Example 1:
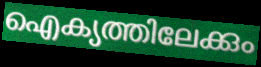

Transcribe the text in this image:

ഐക്യത്തിലേക്കും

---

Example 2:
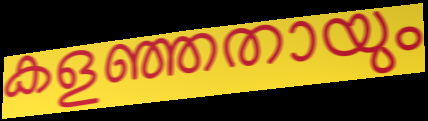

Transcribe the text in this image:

കളഞ്ഞതായും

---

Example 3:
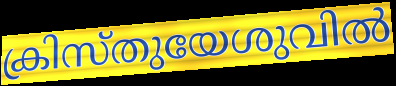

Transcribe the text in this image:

ക്രിസ്തുയേശുവിൽ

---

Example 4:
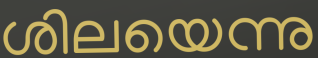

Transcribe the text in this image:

ശിലയെന്നു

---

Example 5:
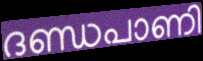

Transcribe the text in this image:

ദണ്ഡപാണി